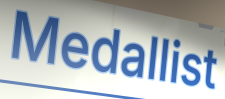
Medallist